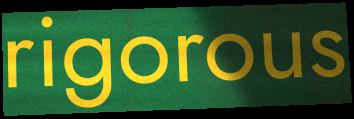
rigorous